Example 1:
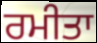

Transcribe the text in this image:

ਰਮੀਤਾ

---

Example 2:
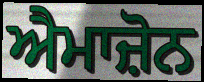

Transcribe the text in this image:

ਐਮਾਜ਼ੋਨ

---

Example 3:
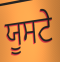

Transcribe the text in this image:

ਯੂਸਟੇ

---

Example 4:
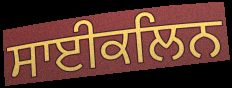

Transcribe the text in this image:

ਸਾਈਕਲਿਨ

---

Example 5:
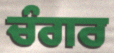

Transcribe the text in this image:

ਚੰਗਰ